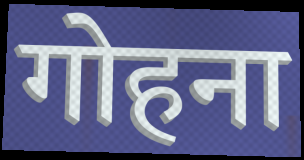
गोहना